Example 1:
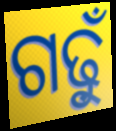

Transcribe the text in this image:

ଗଢ଼ୁଁ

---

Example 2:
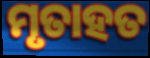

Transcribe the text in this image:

ମୃତାହତ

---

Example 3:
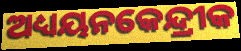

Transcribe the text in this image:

ଅଧ୍ୟୟନକେନ୍ଦ୍ରୀକ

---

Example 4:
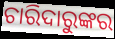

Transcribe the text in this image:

ଚାରିଦାରୁଙ୍କର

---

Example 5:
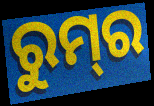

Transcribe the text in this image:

ରୁମ୍‍ର